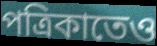
পত্রিকাতেও